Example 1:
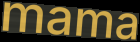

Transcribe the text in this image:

mama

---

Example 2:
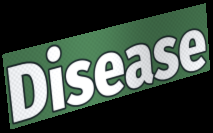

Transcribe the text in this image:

Disease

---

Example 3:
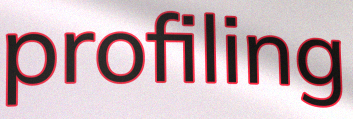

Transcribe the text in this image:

profiling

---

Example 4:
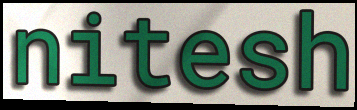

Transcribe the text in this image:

nitesh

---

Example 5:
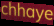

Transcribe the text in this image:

chhaye